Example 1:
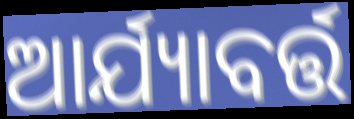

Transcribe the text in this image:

ଆର୍ଯ୍ୟାବର୍ତ୍ତ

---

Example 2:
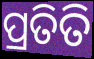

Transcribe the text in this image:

ପ୍ରତିତି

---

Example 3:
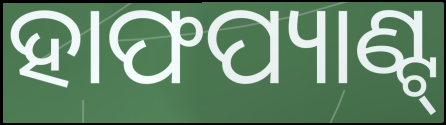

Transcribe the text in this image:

ହାଫପ୍ୟାଣ୍ଟ୍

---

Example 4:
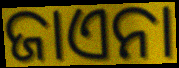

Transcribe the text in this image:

ଜାଏନା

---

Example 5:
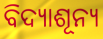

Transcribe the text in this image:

ବିଦ୍ୟାଶୂନ୍ୟ